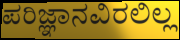
ಪರಿಜ್ಞಾನವಿರಲಿಲ್ಲ